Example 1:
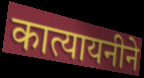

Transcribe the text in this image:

कात्यायनीने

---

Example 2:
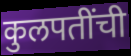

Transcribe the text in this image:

कुलपतींची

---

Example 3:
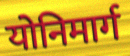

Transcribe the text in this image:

योनिमार्ग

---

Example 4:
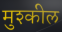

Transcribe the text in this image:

मुश्कील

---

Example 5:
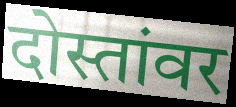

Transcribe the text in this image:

दोस्तांवर